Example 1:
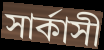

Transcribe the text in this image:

সার্কাসী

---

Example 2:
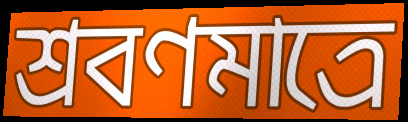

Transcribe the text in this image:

শ্রবণমাত্রে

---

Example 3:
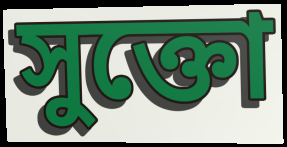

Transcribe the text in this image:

সুক্তো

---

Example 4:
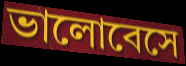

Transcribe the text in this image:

ভালোবেসে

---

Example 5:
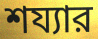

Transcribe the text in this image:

শয্যার